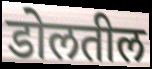
डोलतील